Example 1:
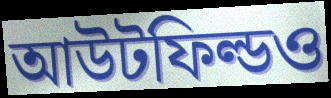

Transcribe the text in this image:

আউটফিল্ডও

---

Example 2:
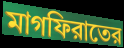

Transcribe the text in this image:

মাগফিরাতের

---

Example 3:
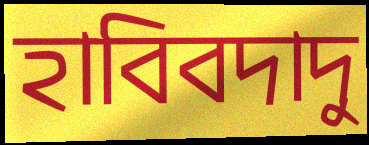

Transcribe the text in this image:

হাবিবদাদু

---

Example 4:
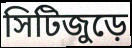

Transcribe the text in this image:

সিটিজুড়ে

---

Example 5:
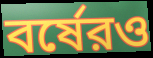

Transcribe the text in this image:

বর্ষেরও